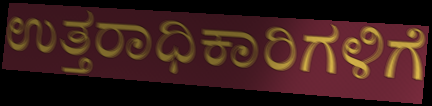
ಉತ್ತರಾಧಿಕಾರಿಗಳಿಗೆ